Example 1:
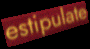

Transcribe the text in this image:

estipulate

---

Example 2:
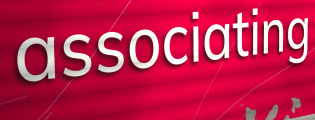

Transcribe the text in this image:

associating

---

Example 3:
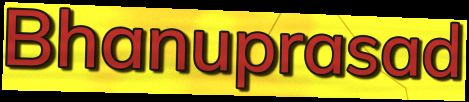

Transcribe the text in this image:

Bhanuprasad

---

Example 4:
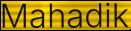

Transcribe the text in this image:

Mahadik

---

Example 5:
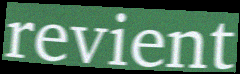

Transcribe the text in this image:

revient